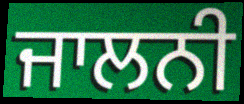
ਜਾਲਨੀ